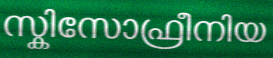
സ്കിസോഫ്രീനിയ